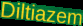
Diltiazem